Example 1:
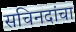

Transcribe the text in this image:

सचिनदांचा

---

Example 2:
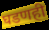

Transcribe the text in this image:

घडणही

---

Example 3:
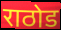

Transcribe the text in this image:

राठोड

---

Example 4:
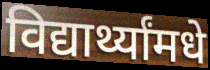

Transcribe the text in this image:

विद्यार्थ्यांमधे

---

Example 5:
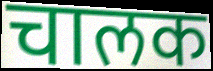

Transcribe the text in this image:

चालक